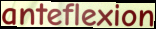
anteflexion